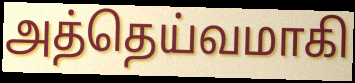
அத்தெய்வமாகி